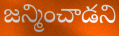
జన్మించాడని